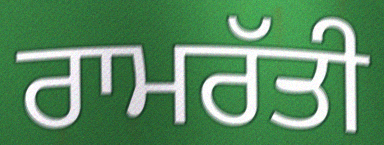
ਰਾਮਰੱਤੀ